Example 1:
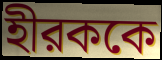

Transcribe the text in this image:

হীরককে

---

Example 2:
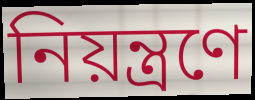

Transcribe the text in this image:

নিয়ন্ত্রণে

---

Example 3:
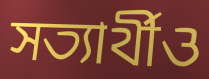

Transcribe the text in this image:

সত্যার্থীও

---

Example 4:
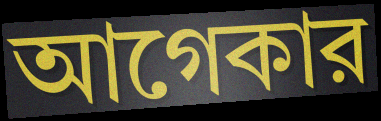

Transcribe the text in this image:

আগেকার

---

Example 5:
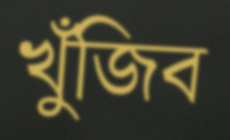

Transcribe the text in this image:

খুঁজিব